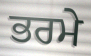
ਭਰਮੇ